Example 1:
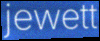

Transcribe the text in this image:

jewett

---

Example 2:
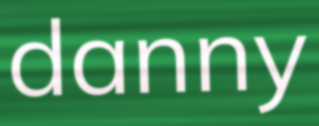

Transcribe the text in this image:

danny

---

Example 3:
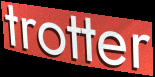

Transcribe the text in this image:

trotter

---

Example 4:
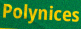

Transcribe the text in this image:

Polynices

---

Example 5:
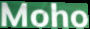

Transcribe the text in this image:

Moho